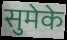
सुमेके